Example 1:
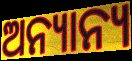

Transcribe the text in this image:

ଅନ୍ଯାନ୍ଯ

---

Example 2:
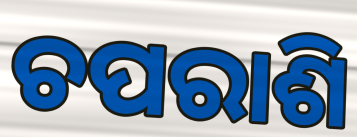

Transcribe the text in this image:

ଚପରାଶି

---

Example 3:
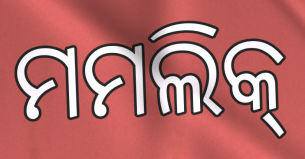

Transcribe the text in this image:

ମମଲିକ୍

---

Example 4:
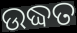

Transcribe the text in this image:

ଉଦ୍ଧତ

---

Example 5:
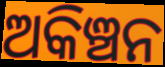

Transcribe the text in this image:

ଅକିଞ୍ଚନ